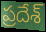
ప్రదేశ్